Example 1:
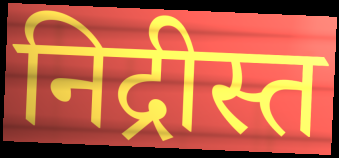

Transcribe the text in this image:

निद्रीस्त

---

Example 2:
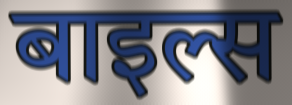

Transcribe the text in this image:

बाइल्स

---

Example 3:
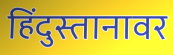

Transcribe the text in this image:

हिंदुस्तानावर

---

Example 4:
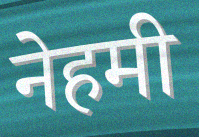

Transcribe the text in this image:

नेहमी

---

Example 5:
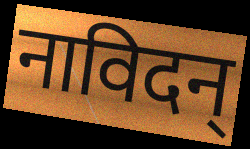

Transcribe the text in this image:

नाविदन्